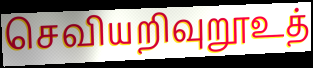
செவியறிவுறூஉத்